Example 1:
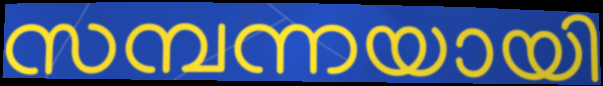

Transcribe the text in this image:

സമ്പന്നയായി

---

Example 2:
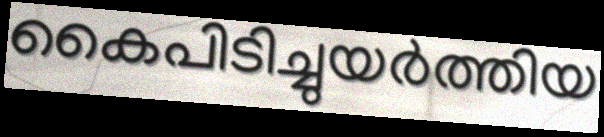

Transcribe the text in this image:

കൈപിടിച്ചുയർത്തിയ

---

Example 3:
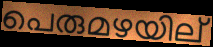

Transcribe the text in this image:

പെരുമഴയില്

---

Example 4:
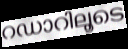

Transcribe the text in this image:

റഡാറിലൂടെ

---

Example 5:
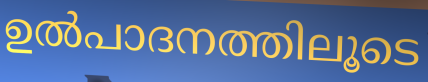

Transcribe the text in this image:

ഉൽപാദനത്തിലൂടെ